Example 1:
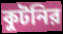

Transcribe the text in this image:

কুটনির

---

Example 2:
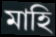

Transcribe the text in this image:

মাহি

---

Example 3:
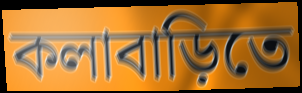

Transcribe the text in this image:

কলাবাড়িতে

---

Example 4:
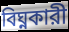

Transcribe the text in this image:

বিঘ্নকারী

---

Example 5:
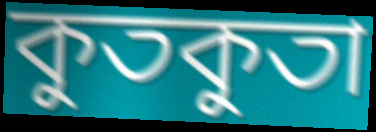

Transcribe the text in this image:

কুতকুতা